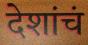
देशांचं